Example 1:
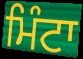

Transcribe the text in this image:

ਮਿੰਟਾ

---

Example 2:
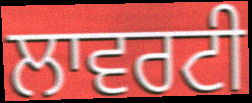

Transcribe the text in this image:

ਲਾਵਰਟੀ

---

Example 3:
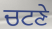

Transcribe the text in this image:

ਚਟਣੇ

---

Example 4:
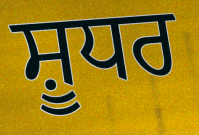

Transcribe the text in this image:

ਸ਼ੂਧਰ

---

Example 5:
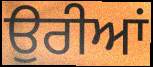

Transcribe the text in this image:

ਉਰੀਆਂ